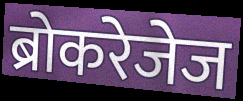
ब्रोकरेजेज